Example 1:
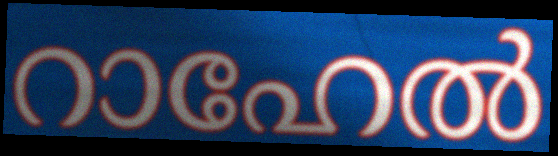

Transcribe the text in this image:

റാഹേൽ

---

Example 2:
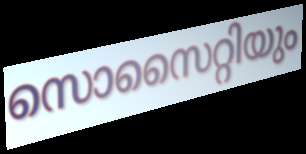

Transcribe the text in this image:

സൊസൈറ്റിയും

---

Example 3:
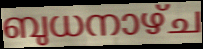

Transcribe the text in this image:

ബുധനാഴ്‌ച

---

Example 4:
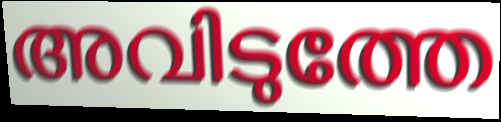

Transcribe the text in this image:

അവിടുത്തേ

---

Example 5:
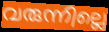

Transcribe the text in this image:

വരുന്നില്ലെ